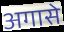
अगासे